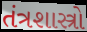
તંત્રશાસ્ત્રો